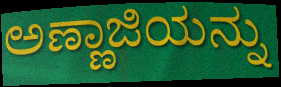
ಅಣ್ಣಾಜಿಯನ್ನು